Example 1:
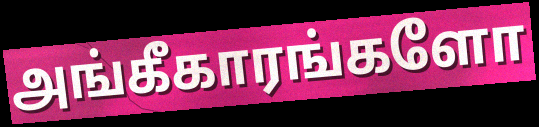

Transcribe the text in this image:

அங்கீகாரங்களோ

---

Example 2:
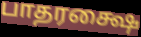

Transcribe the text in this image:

பாதரக்ஷை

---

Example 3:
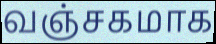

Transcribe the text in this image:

வஞ்சகமாக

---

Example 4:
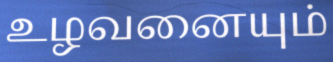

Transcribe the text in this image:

உழவனையும்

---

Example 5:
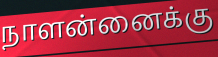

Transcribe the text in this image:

நாளன்னைக்கு